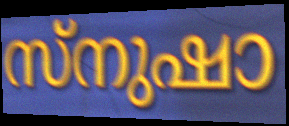
സ്നുഷാ